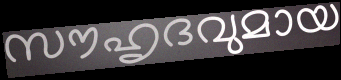
സൗഹൃദവുമായ